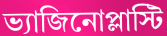
ভ্যাজিনোপ্লাস্টি